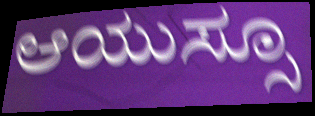
ಆಯುಸ್ಸೂ